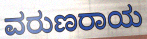
ವರುಣರಾಯ